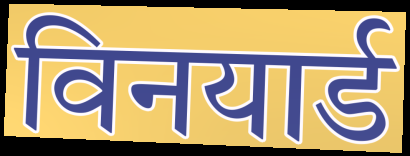
विनयार्ड